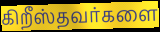
கிறீஸ்தவர்களை